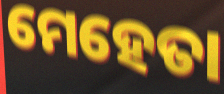
ମେହେତା